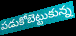
పడుకోబెట్టుకున్న